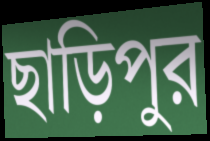
ছাড়িপুর